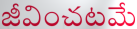
జీవించటమే